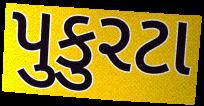
પુકુરટા